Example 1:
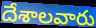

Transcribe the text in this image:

దేశాలవారు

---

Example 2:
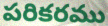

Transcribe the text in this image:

పరికరము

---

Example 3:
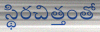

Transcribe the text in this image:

స్థిరచిత్తంతో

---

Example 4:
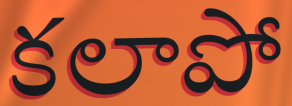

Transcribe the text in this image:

కలాపో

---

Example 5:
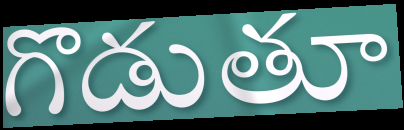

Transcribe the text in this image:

గొడుతూ